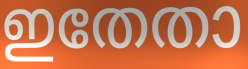
ഇതേതാ